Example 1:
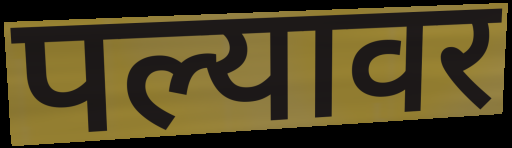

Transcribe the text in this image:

पल्यावर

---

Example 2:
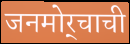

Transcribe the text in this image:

जनमोर्चाची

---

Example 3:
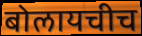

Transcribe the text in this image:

बोलायचीच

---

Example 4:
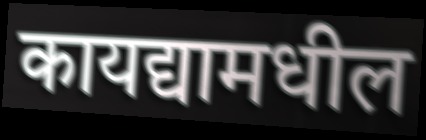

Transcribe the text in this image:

कायद्यामधील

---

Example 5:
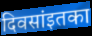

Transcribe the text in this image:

दिवसांइतका